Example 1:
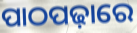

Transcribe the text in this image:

ପାଠପଢ଼ାରେ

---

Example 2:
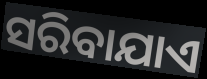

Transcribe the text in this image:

ସରିବାଯାଏ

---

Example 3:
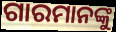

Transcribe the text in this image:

ଗାରମାନଙ୍କୁ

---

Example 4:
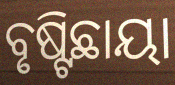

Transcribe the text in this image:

ବୃଷ୍ଟିଛାୟା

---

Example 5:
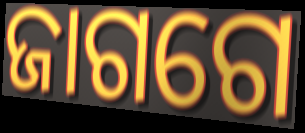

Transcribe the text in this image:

ଜାଗଗେ